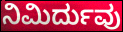
ನಿಮಿರ್ದುವು